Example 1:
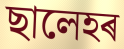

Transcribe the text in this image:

ছালেহৰ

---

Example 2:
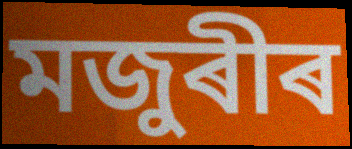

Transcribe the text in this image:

মজুৰীৰ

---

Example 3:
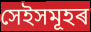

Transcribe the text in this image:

সেইসমূহৰ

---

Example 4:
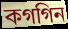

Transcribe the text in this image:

কগগিন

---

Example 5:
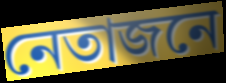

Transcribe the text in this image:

নেতাজনে